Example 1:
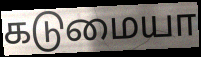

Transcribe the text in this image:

கடுமையா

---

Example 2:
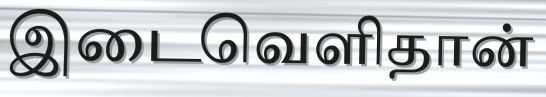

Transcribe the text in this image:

இடைவெளிதான்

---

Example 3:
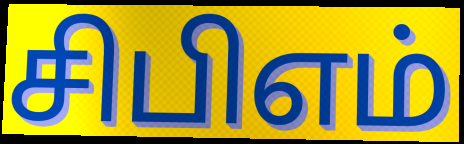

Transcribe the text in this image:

சிபிஎம்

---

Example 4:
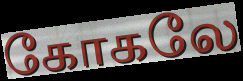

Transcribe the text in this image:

கோகலே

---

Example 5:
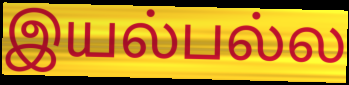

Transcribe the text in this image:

இயல்பல்ல